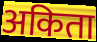
अकिता